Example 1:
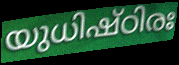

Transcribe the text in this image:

യുധിഷ്ഠിരഃ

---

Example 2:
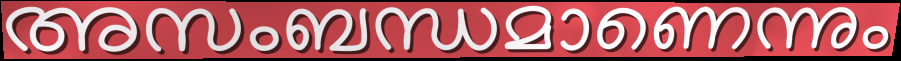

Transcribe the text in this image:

അസംബന്ധമാണെന്നും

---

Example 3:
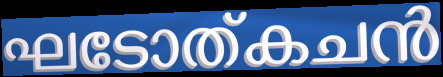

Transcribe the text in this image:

ഘടോത്കചൻ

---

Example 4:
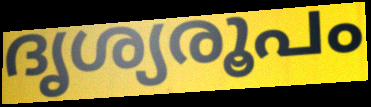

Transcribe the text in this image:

ദൃശ്യരൂപം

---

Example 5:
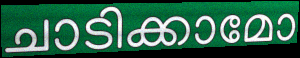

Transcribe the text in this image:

ചാടിക്കാമോ